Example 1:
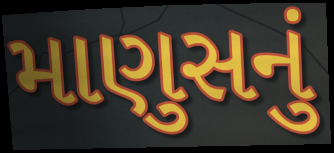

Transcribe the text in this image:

માણુસનું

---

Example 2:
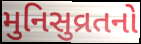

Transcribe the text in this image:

મુનિસુવ્રતનો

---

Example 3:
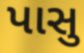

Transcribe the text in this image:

પાસુ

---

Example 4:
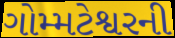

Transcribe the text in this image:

ગોમ્મટેશ્વરની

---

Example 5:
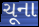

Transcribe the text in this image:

ચૂના